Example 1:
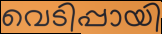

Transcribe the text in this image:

വെടിപ്പായി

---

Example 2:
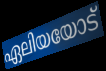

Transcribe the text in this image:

ഏലിയയോട്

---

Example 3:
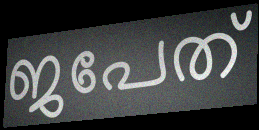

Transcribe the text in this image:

ജപേത്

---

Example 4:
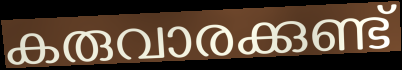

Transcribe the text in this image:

കരുവാരക്കുണ്ട്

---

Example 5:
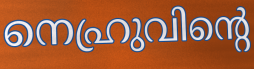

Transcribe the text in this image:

നെഹ്രുവിന്റെ